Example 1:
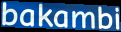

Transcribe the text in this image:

bakambi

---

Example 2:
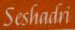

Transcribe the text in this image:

Seshadri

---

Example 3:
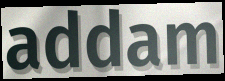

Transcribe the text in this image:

addam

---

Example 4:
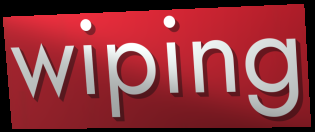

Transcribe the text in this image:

wiping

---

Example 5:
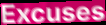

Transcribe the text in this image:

Excuses